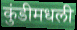
कुंडीमधली